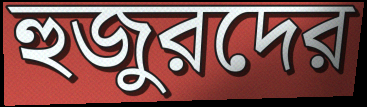
হুজুরদের